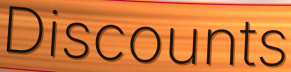
Discounts